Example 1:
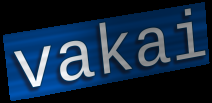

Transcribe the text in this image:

vakai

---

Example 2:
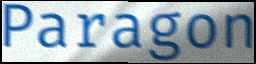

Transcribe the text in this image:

Paragon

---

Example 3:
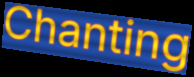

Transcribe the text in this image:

Chanting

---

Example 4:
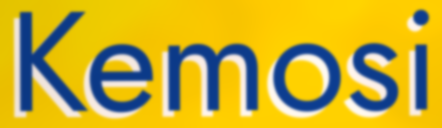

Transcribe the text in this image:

Kemosi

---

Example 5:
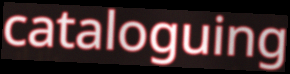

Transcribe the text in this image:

cataloguing